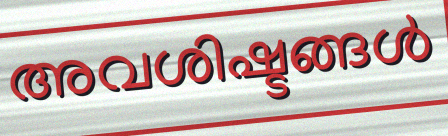
അവശിഷ്ടങ്ങൾ